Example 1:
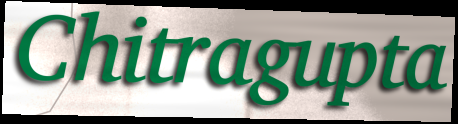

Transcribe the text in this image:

Chitragupta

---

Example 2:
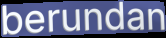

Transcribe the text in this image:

berundan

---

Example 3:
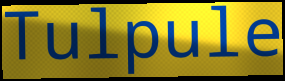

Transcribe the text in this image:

Tulpule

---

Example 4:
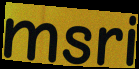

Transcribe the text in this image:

msri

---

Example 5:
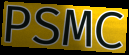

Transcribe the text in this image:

PSMC